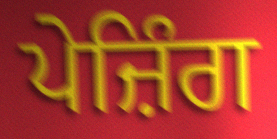
ਪੇਜ਼ਿੰਗ